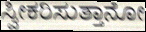
ಸ್ವೀಕರಿಸುತ್ತಾನೋ